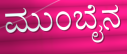
ಮುಂಬೈನ